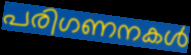
പരിഗണനകൾ